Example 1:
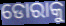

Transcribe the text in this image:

ଡୋରାକୁ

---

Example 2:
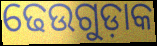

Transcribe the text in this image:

ଢେଉଗୁଡ଼ାକ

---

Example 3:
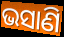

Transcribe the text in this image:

ଭସାଣି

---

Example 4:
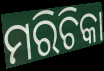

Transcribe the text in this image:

ମରିଚିକା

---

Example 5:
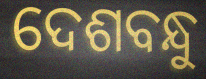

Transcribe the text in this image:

ଦେଶବନ୍ଧୁ